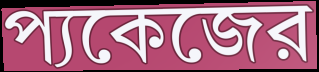
প্যকেজের